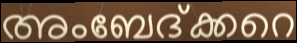
അംബേദ്ക്കറെ